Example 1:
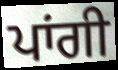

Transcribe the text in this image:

ਪਾਂਗੀ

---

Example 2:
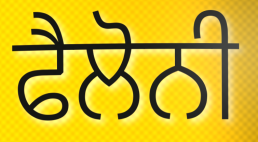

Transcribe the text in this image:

ਫੈਲੋਨੀ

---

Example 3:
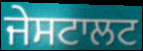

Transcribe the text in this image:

ਜੇਸਟਾਲਟ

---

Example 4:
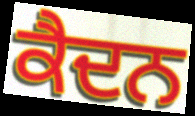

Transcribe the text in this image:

ਕੈਦਨ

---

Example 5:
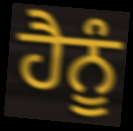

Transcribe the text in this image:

ਹੈਨੂੰ